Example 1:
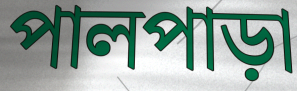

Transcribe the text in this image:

পালপাড়া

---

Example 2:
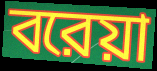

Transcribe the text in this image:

বরেয়া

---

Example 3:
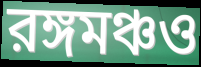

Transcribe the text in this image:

রঙ্গমঞ্চও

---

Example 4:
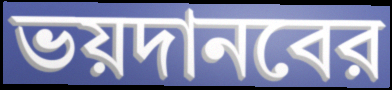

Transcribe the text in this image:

ভয়দানবের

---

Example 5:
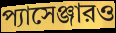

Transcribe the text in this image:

প্যাসেঞ্জারও